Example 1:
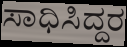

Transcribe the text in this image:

ಸಾಧಿಸಿದ್ದರ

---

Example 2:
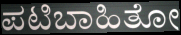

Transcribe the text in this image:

ಪಟಿಬಾಹಿತೋ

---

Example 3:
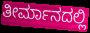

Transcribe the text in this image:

ತೀರ್ಮಾನದಲ್ಲಿ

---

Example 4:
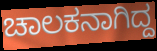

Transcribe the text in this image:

ಚಾಲಕನಾಗಿದ್ದ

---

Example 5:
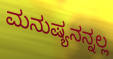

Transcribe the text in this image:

ಮನುಷ್ಯನನ್ನಲ್ಲ